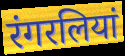
रंगरलियां